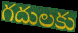
గదులకు